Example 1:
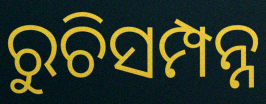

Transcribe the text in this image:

ରୁଚିସମ୍ପନ୍ନ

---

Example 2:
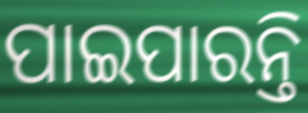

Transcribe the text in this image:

ପାଇପାରନ୍ତି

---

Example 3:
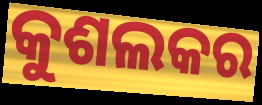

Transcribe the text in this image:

କୁଶଲକର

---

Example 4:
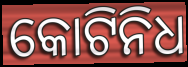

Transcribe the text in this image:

କୋଟିନିଧ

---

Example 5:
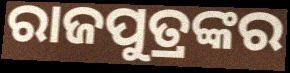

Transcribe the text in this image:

ରାଜପୁତ୍ରଙ୍କର